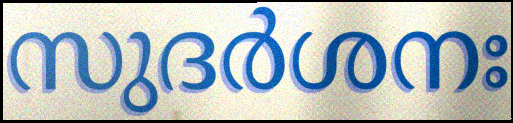
സുദർശനഃ